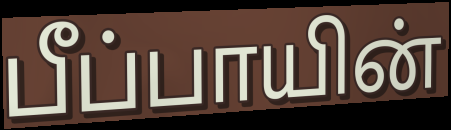
பீப்பாயின்